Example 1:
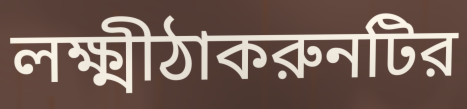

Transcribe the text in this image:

লক্ষ্মীঠাকরুনটির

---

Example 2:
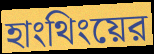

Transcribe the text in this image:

হাংথিংয়ের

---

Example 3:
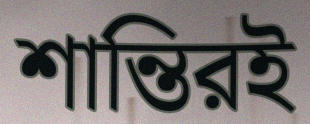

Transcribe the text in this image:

শান্তিরই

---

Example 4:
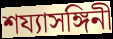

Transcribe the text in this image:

শয্যাসঙ্গিনী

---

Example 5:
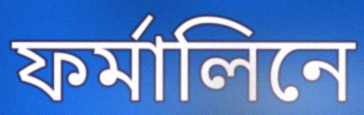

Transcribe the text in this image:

ফর্মালিনে